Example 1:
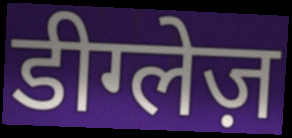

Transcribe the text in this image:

डीग्लेज़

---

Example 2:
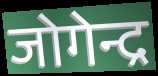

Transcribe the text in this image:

जोगेन्द्र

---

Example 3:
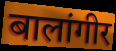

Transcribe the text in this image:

बालांगीर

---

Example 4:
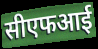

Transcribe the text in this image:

सीएफआई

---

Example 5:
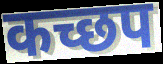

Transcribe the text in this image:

कच्छप